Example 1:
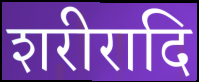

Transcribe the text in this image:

शरीरादि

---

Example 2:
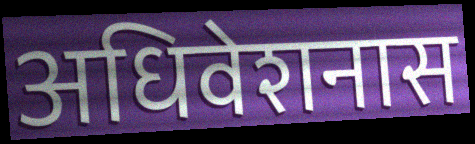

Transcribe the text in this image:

अधिवेशनास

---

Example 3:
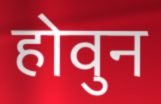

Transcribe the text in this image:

होवुन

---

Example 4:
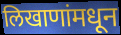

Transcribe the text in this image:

लिखाणांमधून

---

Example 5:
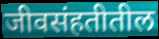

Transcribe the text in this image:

जीवसंहतीतील